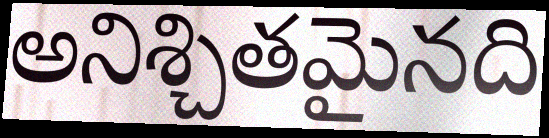
అనిశ్చితమైనది